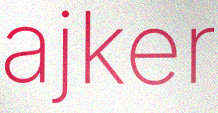
ajker